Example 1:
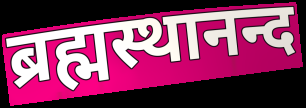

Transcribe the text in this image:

ब्रह्मस्थानन्द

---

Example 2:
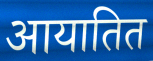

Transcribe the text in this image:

आयातित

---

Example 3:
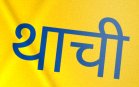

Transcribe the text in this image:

थाची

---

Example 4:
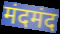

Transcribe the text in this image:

मंदमंद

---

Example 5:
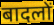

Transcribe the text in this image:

बादलों